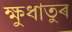
ক্ষুধাতুৰ